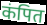
कंपित